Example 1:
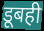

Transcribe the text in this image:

डूबही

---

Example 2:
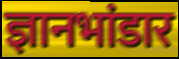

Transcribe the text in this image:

ज्ञानभांडार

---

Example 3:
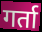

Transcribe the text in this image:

गर्ता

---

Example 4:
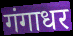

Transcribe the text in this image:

गंगाधर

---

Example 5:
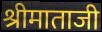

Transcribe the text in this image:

श्रीमाताजी